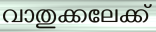
വാതുക്കലേക്ക്